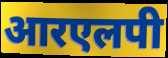
आरएलपी